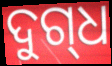
ଦୁଗ୍‌ଧ